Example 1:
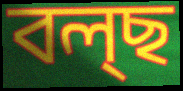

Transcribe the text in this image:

বল্‌ছ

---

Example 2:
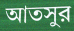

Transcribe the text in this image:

আতসুর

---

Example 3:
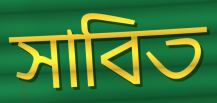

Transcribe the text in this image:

সাবিত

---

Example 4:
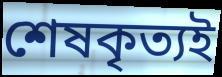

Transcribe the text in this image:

শেষকৃত্যই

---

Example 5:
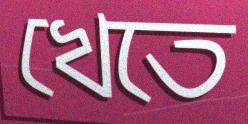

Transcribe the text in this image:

খেতে